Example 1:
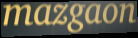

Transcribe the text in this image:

mazgaon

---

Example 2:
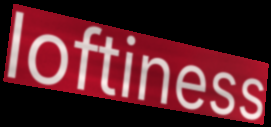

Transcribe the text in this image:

loftiness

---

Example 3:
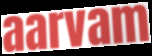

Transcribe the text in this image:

aarvam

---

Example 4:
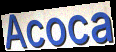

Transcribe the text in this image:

Acoca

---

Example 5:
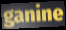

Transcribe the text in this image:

ganine